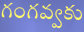
గంగవ్వకు